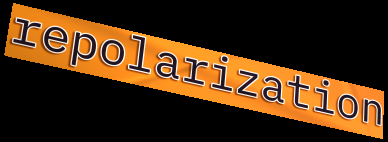
repolarization